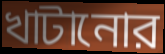
খাটানোর